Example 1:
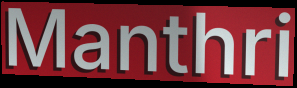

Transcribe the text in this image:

Manthri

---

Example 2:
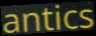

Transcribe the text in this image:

antics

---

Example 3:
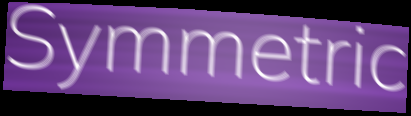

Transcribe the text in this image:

Symmetric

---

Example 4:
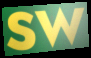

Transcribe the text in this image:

sw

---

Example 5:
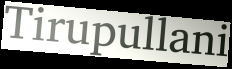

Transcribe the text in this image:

Tirupullani